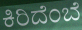
ಕಿರಿದೆಂಬೆ